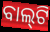
ବାଲ୍‍ଟି